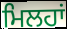
ਮਿਲਹਾਂ